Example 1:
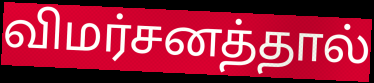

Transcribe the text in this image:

விமர்சனத்தால்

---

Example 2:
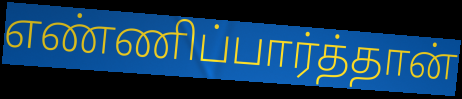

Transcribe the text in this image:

எண்ணிப்பார்த்தான்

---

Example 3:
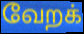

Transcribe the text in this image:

வேறக்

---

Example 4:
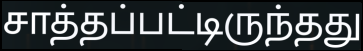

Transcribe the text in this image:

சாத்தப்பட்டிருந்தது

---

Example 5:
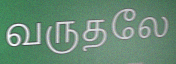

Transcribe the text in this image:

வருதலே